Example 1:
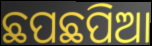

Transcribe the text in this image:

ଛପଛପିଆ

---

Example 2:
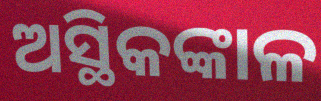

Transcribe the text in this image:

ଅସ୍ଥିକଙ୍କାଳ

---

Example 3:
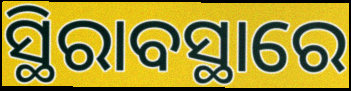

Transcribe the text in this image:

ସ୍ଥିରାବସ୍ଥାରେ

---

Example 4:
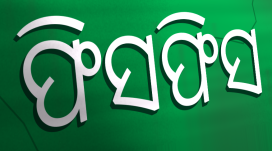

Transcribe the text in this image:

ଫିସଫିସ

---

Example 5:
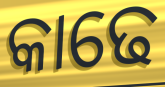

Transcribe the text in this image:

କାଢେ